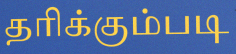
தரிக்கும்படி